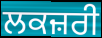
ਲਕਜ਼ਰੀ